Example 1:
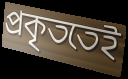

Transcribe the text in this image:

প্ৰকৃততেই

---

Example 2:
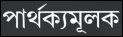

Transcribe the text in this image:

পাৰ্থক্যমূলক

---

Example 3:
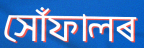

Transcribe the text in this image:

সোঁফালৰ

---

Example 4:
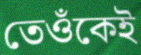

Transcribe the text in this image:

তেওঁকেই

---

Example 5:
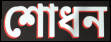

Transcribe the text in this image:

শোধন